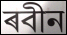
ৰবীন